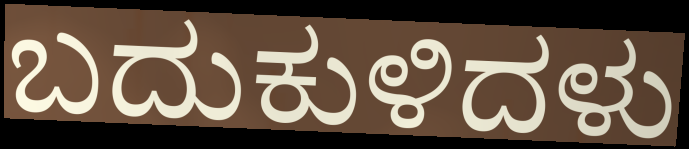
ಬದುಕುಳಿದಳು